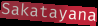
Sakatayana